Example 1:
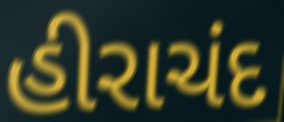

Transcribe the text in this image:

હીરાચંદ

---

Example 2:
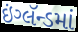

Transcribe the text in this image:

ઇંગ્લૅન્ડમાં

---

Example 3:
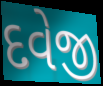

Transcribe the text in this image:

દવેજી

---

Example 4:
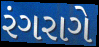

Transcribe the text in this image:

રંગરાગે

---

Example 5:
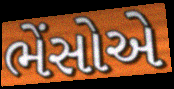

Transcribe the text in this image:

ભેંસોએ